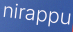
nirappu